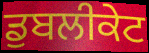
ਡੁਬਲੀਕੇਟ